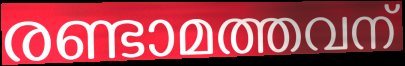
രണ്ടാമത്തവന്